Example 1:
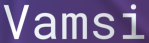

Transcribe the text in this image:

Vamsi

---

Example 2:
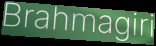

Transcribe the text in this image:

Brahmagiri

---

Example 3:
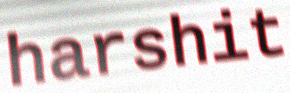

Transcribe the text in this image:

harshit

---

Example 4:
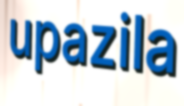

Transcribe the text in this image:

upazila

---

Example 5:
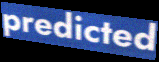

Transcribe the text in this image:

predicted